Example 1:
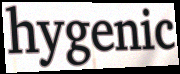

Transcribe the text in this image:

hygenic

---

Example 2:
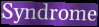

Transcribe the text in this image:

Syndrome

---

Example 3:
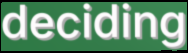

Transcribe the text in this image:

deciding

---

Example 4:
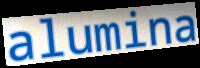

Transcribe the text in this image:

alumina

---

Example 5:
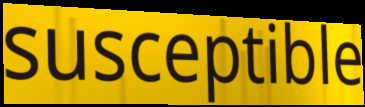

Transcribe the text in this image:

susceptible